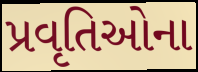
પ્રવૃતિઓના